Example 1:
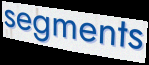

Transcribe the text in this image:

segments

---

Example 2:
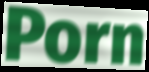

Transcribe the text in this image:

Porn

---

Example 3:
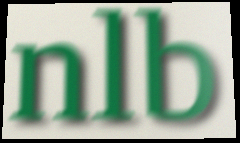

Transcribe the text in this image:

nlb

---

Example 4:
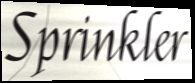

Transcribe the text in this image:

Sprinkler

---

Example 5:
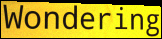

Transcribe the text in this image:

Wondering